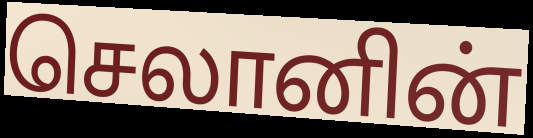
செலானின்